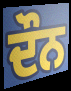
ਦੌਨ